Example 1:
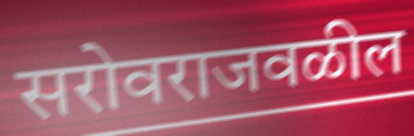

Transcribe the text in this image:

सरोवराजवळील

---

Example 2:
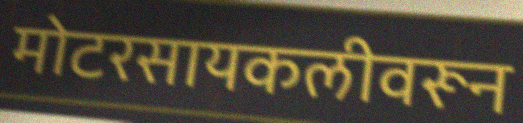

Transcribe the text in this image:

मोटरसायकलीवरून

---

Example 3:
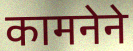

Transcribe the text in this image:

कामनेने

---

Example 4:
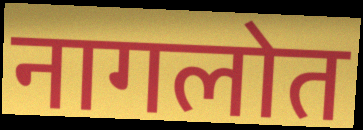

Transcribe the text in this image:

नागलोत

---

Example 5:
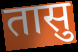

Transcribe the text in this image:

तासु